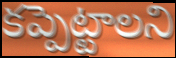
కప్పెట్టాలని